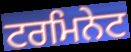
ਟਰਮਿਨੇਟ